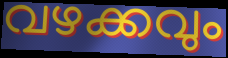
വഴക്കവും